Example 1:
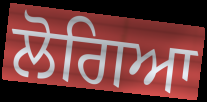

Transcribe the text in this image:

ਲੋਗਿਆ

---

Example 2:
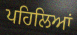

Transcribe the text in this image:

ਪਹਿਲਿਆਂ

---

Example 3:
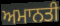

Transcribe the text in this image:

ਅਮਾਨਤੀ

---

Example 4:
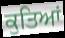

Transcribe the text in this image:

ਕੁਤਿਆਂ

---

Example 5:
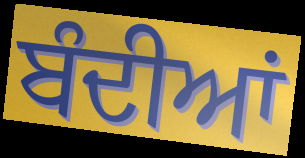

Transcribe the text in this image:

ਬੰਦੀਆਂ